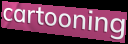
cartooning